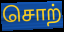
சொற்